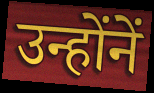
उन्होंनें